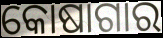
କୋଷାଗାର